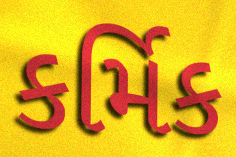
કર્મિક